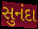
સુનંદા